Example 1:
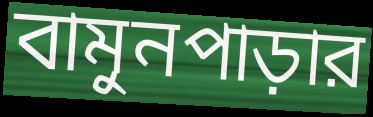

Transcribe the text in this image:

বামুনপাড়ার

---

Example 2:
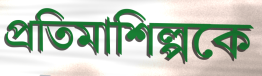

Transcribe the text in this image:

প্রতিমাশিল্পকে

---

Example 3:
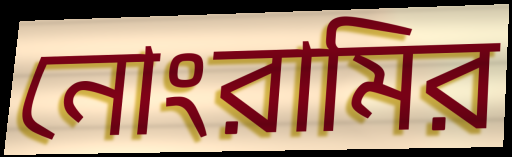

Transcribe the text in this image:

নোংরামির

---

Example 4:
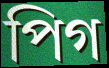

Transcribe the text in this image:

পিগ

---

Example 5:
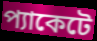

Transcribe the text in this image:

প্যাকেটে